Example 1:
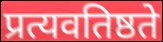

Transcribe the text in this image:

प्रत्यवतिष्ठते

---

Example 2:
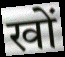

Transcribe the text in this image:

खों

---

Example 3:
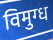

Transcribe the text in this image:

विमुग्ध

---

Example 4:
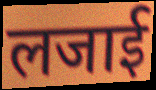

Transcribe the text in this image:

लजाई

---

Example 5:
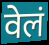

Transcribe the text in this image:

वेलं